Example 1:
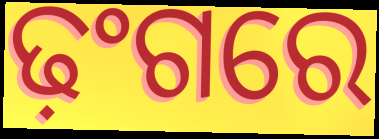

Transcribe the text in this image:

ଢ଼ଂଗରେ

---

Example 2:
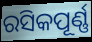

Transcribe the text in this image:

ରସିକପୂର୍ଣ୍ଣ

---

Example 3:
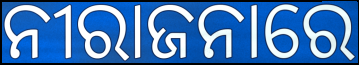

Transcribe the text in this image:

ନୀରାଜନାରେ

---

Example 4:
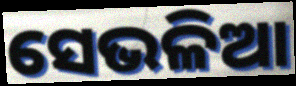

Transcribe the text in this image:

ସେଭଳିଆ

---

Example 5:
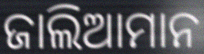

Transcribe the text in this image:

ଜାଲିଆମାନ